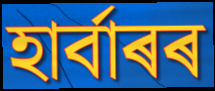
হাৰ্বাৰৰ